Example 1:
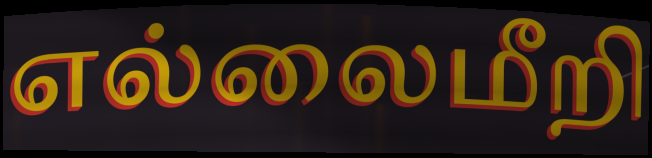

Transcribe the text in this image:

எல்லைமீறி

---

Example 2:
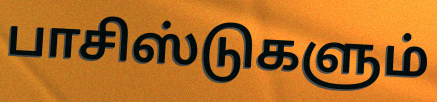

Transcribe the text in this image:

பாசிஸ்டுகளும்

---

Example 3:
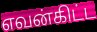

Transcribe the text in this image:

எவன்கிட்ட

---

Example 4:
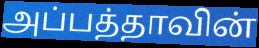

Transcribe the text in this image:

அப்பத்தாவின்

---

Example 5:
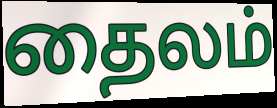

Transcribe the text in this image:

தைலம்